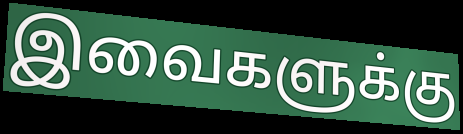
இவைகளுக்கு